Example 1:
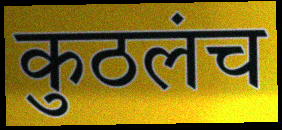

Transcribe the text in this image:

कुठलंच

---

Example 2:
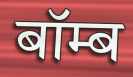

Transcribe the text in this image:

बॉम्ब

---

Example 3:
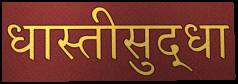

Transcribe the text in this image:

धास्तीसुद्धा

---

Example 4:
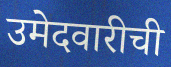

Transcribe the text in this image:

उमेदवारीची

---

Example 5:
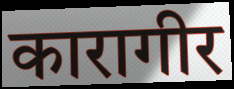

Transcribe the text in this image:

कारागीर